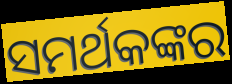
ସମର୍ଥକଙ୍କର